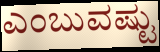
ಎಂಬುವಷ್ಟು